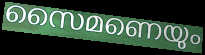
സൈമണെയും